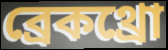
ব্রেকথ্রো